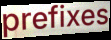
prefixes